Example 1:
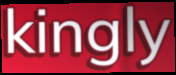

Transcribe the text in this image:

kingly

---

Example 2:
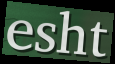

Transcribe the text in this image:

esht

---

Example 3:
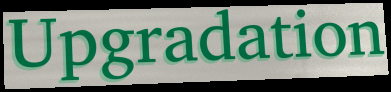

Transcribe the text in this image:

Upgradation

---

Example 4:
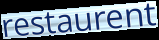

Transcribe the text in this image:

restaurent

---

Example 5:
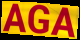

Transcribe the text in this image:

AGA